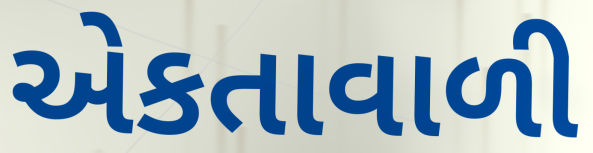
એકતાવાળી